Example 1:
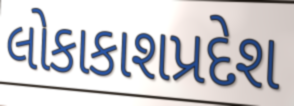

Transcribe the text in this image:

લોકાકાશપ્રદેશ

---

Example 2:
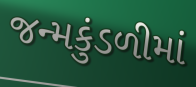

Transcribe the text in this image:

જન્મકુંડળીમાં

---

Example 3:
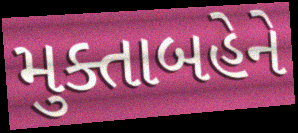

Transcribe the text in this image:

મુક્તાબહેને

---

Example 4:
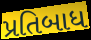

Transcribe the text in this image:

પ્રતિબાધ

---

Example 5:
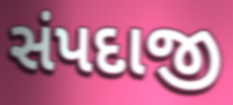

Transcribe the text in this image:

સંપદાજી